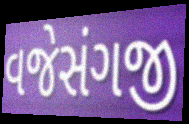
વજેસંગજી